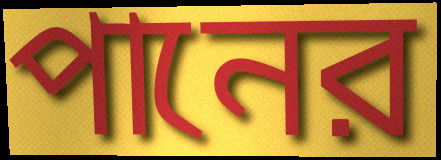
পানের